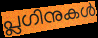
പ്ലഗിനുകൾ